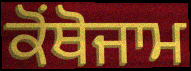
ਕੋਂਥੋਜਾਮ